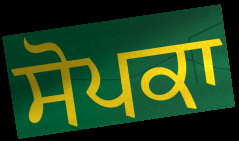
ਸੋਪਕਾ